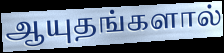
ஆயுதங்களால்